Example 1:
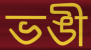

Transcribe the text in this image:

ভঙী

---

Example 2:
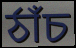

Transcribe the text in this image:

ঠাঁচ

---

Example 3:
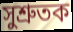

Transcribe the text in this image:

সুশ্ৰুতক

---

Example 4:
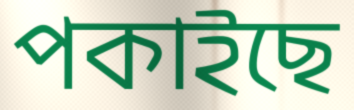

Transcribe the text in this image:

পকাইছে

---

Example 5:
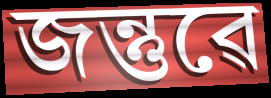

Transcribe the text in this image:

জন্তুৱে